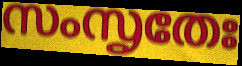
സംസൃതേഃ